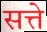
सत्ते